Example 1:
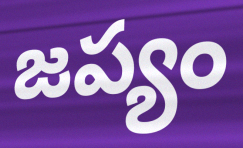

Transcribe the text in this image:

జప్యం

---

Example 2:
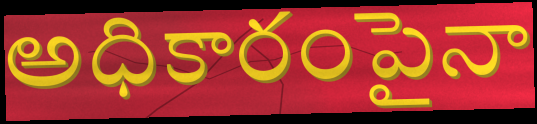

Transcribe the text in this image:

అధికారంపైనా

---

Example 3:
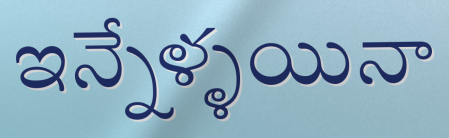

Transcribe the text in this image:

ఇన్నేళ్ళయినా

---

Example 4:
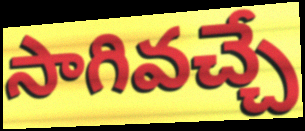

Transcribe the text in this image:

సాగివచ్చే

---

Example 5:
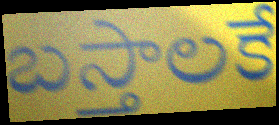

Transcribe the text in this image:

బస్తాలకే